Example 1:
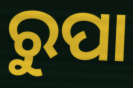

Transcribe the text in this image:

ରୁପା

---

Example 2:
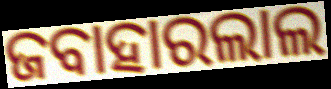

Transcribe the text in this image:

ଜବାହାରଲାଲ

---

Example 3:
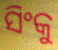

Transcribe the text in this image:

ସିଂକୁ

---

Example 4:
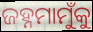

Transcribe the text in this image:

ଜହ୍ନମାମୁଁକୁ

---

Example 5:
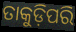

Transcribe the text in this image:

ତାକୁଡ଼ିପରି